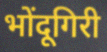
भोंदूगिरी